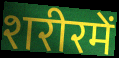
शरीरमें